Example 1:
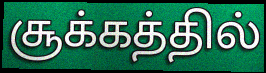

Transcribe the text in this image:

சூக்கத்தில்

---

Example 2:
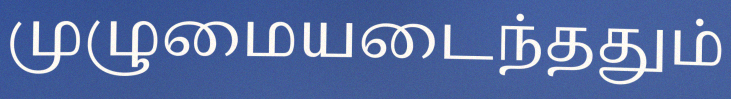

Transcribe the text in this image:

முழுமையடைந்ததும்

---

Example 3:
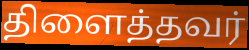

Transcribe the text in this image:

திளைத்தவர்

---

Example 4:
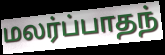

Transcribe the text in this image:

மலர்ப்பாதந்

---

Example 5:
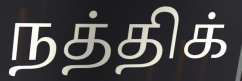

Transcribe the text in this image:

நத்திக்